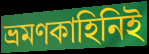
ভ্রমণকাহিনিই